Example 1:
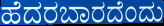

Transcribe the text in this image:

ಹೆದರಬಾರದೆಂದು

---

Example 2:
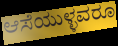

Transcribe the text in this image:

ಆಸೆಯುಳ್ಳವರೂ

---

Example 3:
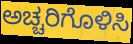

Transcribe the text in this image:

ಅಚ್ಚರಿಗೊಳಿಸಿ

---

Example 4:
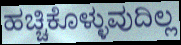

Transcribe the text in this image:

ಹಚ್ಚಿಕೊಳ್ಳುವುದಿಲ್ಲ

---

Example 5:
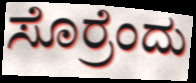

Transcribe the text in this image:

ಸೊರ್ರೆಂದು